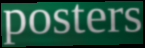
posters